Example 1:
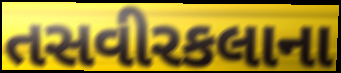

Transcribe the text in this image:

તસવીરકલાના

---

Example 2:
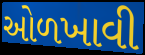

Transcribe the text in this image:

ઓળખાવી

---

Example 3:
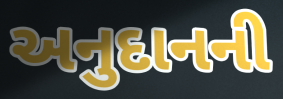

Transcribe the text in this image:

અનુદાનની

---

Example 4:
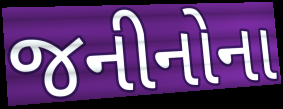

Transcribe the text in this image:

જનીનોના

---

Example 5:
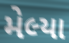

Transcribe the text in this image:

મેલ્યા